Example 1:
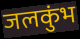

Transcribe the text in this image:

जलकुंभ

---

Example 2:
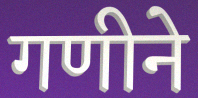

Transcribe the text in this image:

गणीने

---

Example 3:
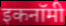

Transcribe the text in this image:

इकनॉमी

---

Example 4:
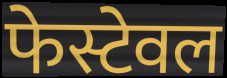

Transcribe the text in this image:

फेस्टेवल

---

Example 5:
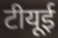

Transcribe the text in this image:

टीयूई